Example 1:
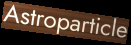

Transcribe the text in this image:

Astroparticle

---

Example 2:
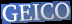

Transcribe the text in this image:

GEICO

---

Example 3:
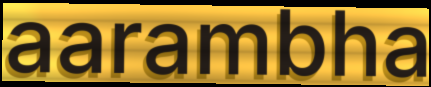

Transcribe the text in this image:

aarambha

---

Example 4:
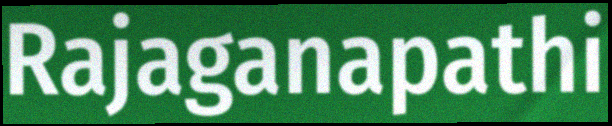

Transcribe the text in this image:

Rajaganapathi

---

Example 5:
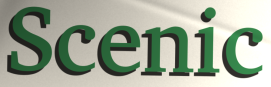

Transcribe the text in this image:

Scenic